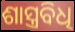
ଶାସ୍ତ୍ରବିଧି